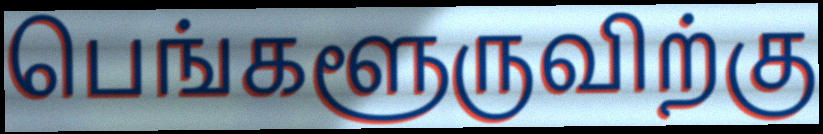
பெங்களூருவிற்கு